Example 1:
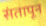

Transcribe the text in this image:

संतापून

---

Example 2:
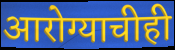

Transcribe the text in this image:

आरोग्याचीही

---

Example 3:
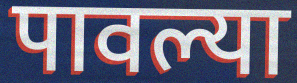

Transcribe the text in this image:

पावल्या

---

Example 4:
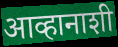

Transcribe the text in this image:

आव्हानाशी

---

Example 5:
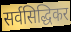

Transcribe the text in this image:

सर्वसिद्धिकर